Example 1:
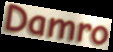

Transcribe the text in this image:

Damro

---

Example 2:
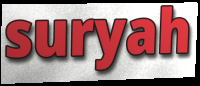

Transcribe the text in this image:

suryah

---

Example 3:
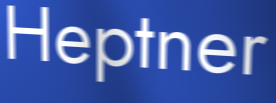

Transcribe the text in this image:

Heptner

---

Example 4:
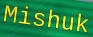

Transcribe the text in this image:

Mishuk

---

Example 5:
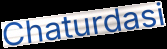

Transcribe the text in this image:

Chaturdasi